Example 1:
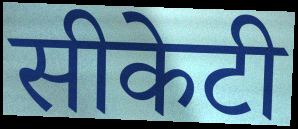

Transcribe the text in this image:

सीकेटी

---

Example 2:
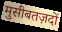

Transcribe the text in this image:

मुसीबतज़दों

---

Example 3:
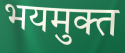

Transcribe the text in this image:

भयमुक्त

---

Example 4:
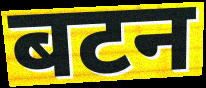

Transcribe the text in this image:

बटन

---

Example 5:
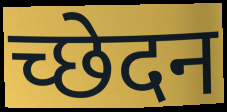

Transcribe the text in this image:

च्छेदन